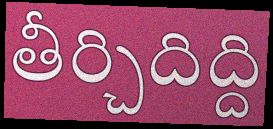
తీర్చిదిద్ది